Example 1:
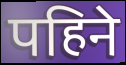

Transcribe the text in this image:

पहिने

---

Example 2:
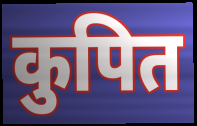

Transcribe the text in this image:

कुपित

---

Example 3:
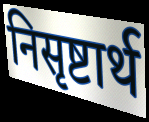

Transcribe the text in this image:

निसृष्टार्थ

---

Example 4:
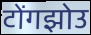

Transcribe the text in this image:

टोंगझोउ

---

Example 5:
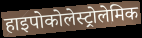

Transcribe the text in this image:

हाइपोकोलेस्ट्रोलेमिक